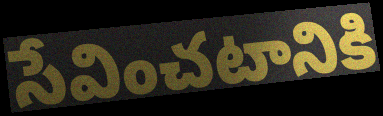
సేవించటానికి